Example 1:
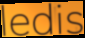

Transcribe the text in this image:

ledis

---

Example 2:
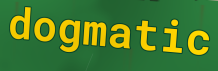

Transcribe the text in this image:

dogmatic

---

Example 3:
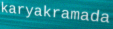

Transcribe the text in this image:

karyakramada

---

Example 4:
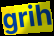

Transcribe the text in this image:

grih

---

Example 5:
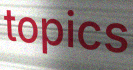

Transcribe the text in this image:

topics